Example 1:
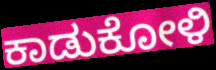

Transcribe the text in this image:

ಕಾಡುಕೋಳಿ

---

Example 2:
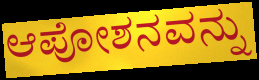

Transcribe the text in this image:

ಆಪೋಶನವನ್ನು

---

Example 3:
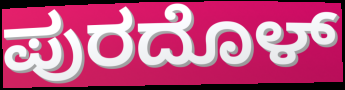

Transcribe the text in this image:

ಪುರದೊಳ್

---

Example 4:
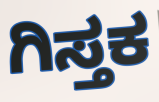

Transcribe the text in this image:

ಗಿಸ್ತಕ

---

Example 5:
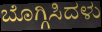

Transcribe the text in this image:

ಬೊಗ್ಗಿಸಿದಳು